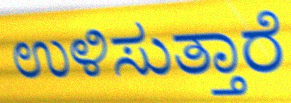
ಉಳಿಸುತ್ತಾರೆ